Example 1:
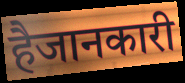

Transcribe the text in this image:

हैजानकारी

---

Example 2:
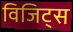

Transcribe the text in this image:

विजिट्स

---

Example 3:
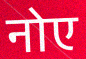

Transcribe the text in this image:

नोए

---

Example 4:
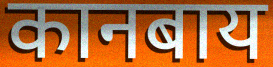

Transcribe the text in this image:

कानबाय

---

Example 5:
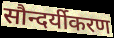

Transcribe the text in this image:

सौन्दर्यीकरण